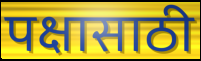
पक्षासाठी